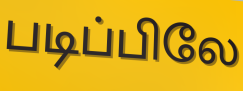
படிப்பிலே